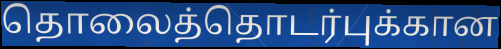
தொலைத்தொடர்புக்கான